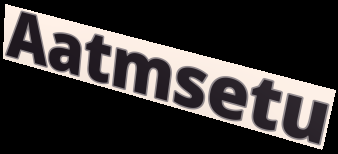
Aatmsetu